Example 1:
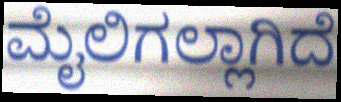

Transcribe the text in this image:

ಮೈಲಿಗಲ್ಲಾಗಿದೆ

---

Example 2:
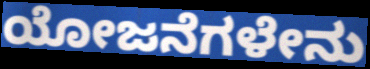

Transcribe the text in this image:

ಯೋಜನೆಗಳೇನು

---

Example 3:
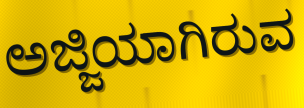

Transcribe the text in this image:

ಅಜ್ಜಿಯಾಗಿರುವ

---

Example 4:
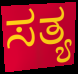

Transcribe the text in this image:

ಸತ್ಯ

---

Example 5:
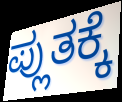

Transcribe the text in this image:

ಪ್ಲುತಕ್ಕೆ